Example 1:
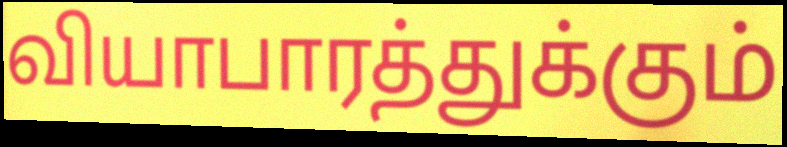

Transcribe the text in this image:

வியாபாரத்துக்கும்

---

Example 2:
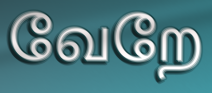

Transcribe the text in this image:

வேறே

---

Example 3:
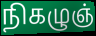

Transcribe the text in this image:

நிகழுஞ்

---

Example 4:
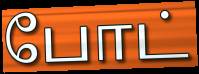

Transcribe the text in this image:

போட்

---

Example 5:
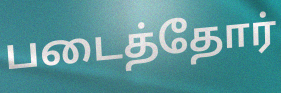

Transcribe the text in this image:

படைத்தோர்